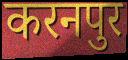
करनपुर